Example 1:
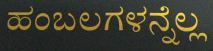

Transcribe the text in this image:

ಹಂಬಲಗಳನ್ನೆಲ್ಲ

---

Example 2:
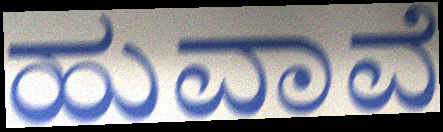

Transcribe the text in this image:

ಹುವಾವೆ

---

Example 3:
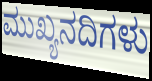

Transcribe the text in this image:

ಮುಖ್ಯನದಿಗಳು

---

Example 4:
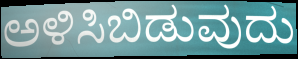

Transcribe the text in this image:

ಅಳಿಸಿಬಿಡುವುದು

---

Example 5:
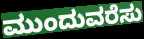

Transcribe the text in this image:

ಮುಂದುವರೆಸು